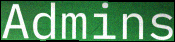
Admins